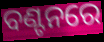
ବଣ୍ଟନରେ